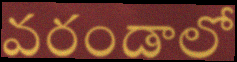
వరండాలో